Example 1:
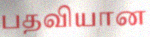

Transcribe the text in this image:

பதவியான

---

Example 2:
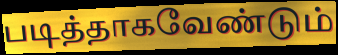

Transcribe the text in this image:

படித்தாகவேண்டும்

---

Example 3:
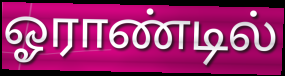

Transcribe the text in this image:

ஓராண்டில்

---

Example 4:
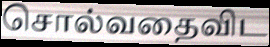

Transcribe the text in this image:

சொல்வதைவிட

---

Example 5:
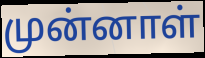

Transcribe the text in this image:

முன்னாள்